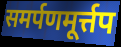
समर्पणमूर्त्तप